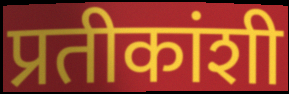
प्रतीकांशी